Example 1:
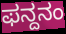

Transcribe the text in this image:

ಫನ್ದನಂ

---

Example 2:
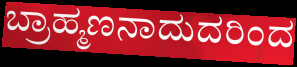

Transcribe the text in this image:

ಬ್ರಾಹ್ಮಣನಾದುದರಿಂದ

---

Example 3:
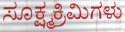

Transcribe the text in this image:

ಸೂಕ್ಷ್ಮಕ್ರಿಮಿಗಳು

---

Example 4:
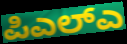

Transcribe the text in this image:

ಪಿಎಲ್ಎ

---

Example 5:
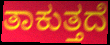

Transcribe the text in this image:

ತಾಕುತ್ತದೆ